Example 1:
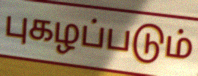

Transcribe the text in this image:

புகழப்படும்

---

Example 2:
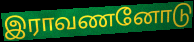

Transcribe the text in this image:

இராவணனோடு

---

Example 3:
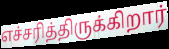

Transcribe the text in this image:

எச்சரித்திருக்கிறார்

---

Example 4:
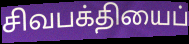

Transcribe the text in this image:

சிவபக்தியைப்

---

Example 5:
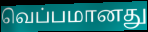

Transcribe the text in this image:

வெப்பமானது